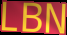
LBN